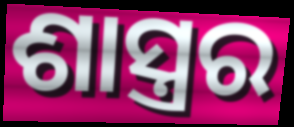
ଶାସ୍ତ୍ରର